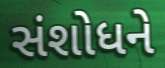
સંશોધને